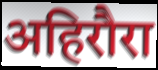
अहिरौरा